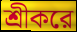
শ্রীকরে